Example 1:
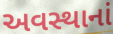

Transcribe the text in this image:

અવસ્થાનાં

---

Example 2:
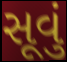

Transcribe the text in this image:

સૂવું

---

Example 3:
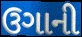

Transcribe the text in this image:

ઉગાની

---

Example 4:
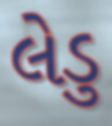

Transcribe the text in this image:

લેડુ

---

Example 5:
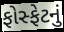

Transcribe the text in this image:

ફોસ્ફેટનું